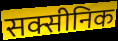
सक्सीनिक